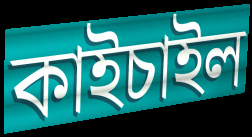
কাইচাইল